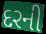
દરની